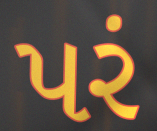
પરં